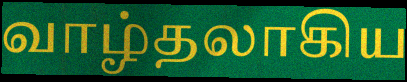
வாழ்தலாகிய